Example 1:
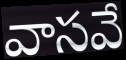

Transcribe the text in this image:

వాసవే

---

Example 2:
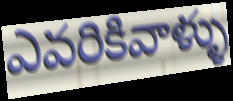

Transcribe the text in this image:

ఎవరికివాళ్ళు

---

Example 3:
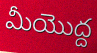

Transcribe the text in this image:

మీయొద్ద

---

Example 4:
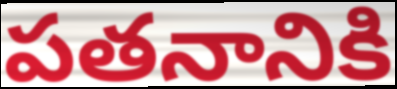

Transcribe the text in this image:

పతనానికి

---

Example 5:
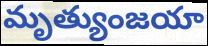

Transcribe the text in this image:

మృత్యుంజయా